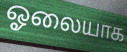
ஓலையாக